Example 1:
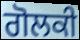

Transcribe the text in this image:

ਗੋਲਕੀ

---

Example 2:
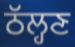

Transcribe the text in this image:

ਠੱਲ੍ਹਣ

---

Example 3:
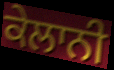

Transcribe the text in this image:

ਕੇਲਾਨੀ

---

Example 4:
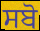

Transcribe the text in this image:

ਸਬੋ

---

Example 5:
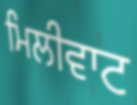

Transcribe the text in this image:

ਮਿਲੀਵਾਟ